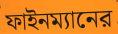
ফাইনম্যানের